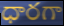
ధారగా